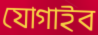
যোগাইব